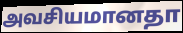
அவசியமானதா